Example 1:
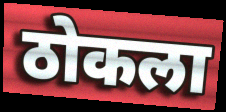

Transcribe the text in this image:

ठोकला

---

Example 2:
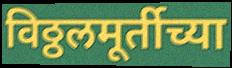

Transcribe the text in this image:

विठ्ठलमूर्तीच्या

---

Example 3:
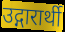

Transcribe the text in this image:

उद्गारार्थी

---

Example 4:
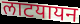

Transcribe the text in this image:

लाटयायन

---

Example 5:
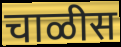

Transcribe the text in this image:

चाळीस